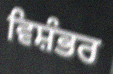
ਵਿਸ਼ੰਭਰ